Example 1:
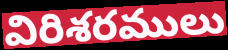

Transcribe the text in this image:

విరిశరములు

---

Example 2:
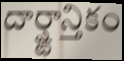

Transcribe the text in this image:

దార్ష్టాన్తికం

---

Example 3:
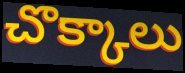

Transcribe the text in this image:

చొక్కాలు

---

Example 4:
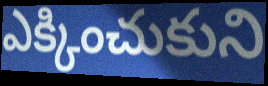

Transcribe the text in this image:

ఎక్కించుకుని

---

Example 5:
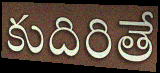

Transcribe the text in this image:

కుదిరితే